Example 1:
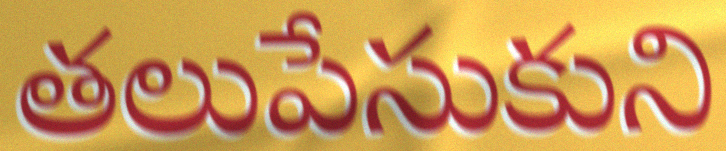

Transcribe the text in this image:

తలుపేసుకుని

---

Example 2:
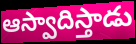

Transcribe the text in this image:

ఆస్వాదిస్తాడు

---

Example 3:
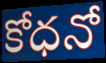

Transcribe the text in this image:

కోధనో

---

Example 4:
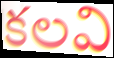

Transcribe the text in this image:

కలవి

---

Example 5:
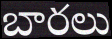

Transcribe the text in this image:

బారలు